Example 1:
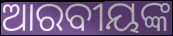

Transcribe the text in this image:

ଆରବୀୟଙ୍କ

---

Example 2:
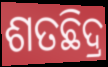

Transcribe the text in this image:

ଶତଛିଦ୍ର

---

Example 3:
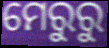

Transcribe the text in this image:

ମେରୁରୁ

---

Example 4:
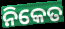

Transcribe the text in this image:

ନିକେତ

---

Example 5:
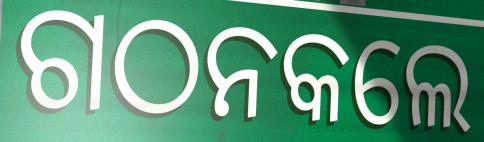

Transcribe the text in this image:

ଗଠନକଲେ